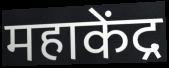
महाकेंद्र